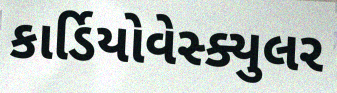
કાર્ડિયોવેસ્ક્યુલર